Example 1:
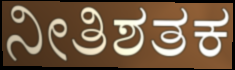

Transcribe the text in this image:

ನೀತಿಶತಕ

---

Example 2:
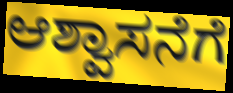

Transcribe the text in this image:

ಆಶ್ವಾಸನೆಗೆ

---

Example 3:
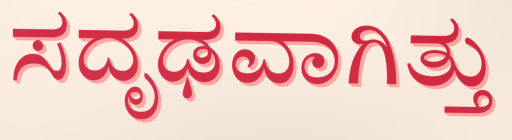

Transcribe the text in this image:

ಸದೃಢವಾಗಿತ್ತು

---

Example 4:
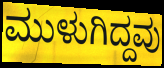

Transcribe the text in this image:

ಮುಳುಗಿದ್ದವು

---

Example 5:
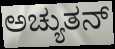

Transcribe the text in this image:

ಅಚ್ಯುತನ್